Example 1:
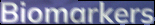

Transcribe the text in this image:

Biomarkers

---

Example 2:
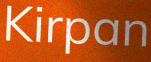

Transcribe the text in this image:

Kirpan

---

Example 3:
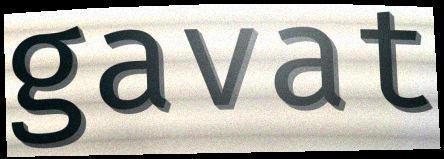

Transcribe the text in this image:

gavat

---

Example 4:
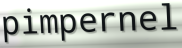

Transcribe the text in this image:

pimpernel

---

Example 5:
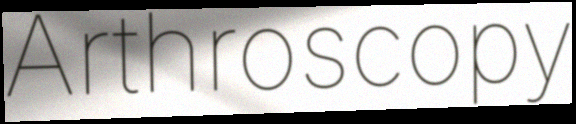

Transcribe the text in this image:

Arthroscopy